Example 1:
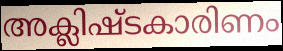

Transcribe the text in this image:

അക്ലിഷ്ടകാരിണം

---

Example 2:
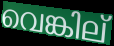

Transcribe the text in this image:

വെങ്കില്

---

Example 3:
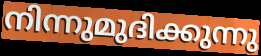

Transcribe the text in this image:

നിന്നുമുദിക്കുന്നു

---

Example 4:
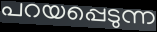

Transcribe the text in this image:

പറയപ്പെടുന്ന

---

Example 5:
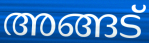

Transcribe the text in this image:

അങ്ങട്